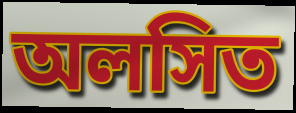
অলসিত